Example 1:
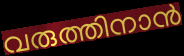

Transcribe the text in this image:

വരുത്തിനാൻ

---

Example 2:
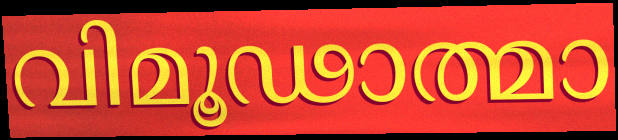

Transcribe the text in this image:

വിമൂഢാത്മാ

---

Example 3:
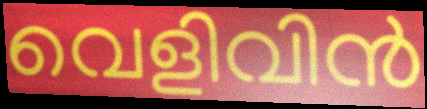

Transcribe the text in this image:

വെളിവിൻ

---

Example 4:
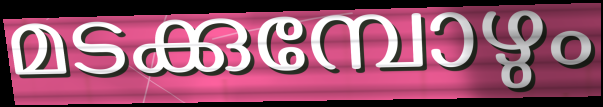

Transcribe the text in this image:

മടക്കുമ്പോഴും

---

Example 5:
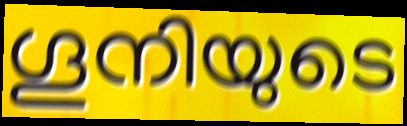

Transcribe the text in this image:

ഗൂനിയുടെ